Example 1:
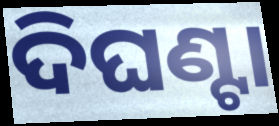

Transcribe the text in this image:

ଦିଘଣ୍ଟା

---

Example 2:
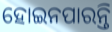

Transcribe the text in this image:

ହୋଇନପାରନ୍ତି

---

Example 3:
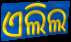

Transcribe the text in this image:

ଏଲିଲ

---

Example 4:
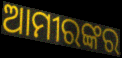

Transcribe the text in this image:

ଆମୀରଙ୍କର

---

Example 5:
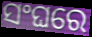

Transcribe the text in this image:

ସଂଘରେ